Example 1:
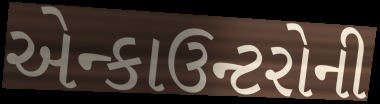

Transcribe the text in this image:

એન્કાઉન્ટરોની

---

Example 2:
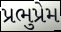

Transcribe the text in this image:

પ્રભુપ્રેમ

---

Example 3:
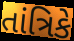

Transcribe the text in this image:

તાંત્રિકે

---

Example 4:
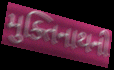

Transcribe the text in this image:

મુક્તિનાથની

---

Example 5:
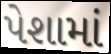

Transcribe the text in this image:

પેશામાં